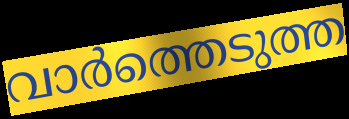
വാർത്തെടുത്ത